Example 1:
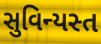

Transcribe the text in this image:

સુવિન્યસ્ત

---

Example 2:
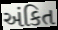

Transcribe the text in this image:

અંકિત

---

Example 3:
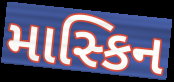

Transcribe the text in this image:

માસ્કિન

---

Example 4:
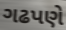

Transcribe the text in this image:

ગઢપણે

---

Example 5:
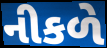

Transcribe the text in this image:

નીકળે